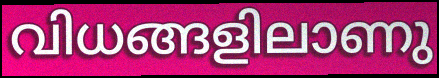
വിധങ്ങളിലാണു